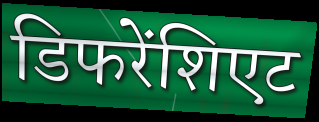
डिफरेंशिएट